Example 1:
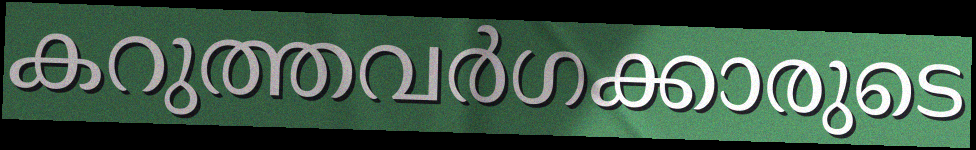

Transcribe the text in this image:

കറുത്തവർഗക്കാരുടെ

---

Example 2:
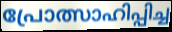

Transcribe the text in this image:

പ്രോത്സാഹിപ്പിച്ച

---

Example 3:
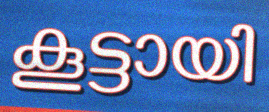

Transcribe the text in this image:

കൂട്ടായി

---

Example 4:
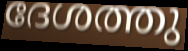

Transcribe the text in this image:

ദേശത്തു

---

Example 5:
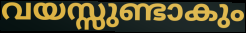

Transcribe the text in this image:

വയസ്സുണ്ടാകും